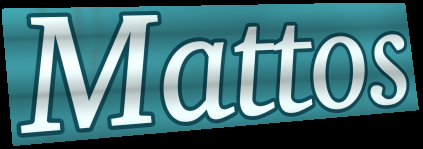
Mattos